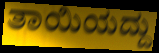
ತಾಯಿಯದ್ದು